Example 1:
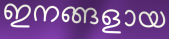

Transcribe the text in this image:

ഇനങ്ങളായ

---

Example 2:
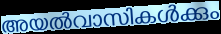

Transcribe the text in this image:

അയൽവാസികൾക്കും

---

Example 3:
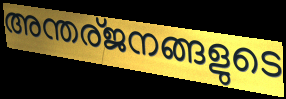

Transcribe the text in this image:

അന്തര്ജനങ്ങളുടെ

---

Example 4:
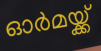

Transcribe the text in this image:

ഓർമയ്ക്ക്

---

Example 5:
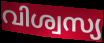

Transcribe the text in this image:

വിശ്വസ്യ